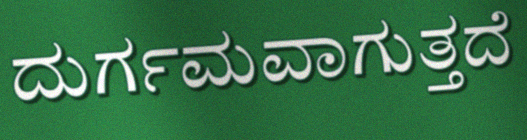
ದುರ್ಗಮವಾಗುತ್ತದೆ